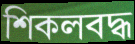
শিকলবদ্ধ